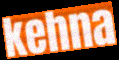
kehna